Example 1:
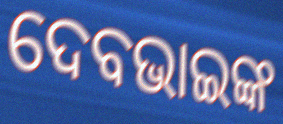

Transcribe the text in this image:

ଦେବଭାଇଙ୍କ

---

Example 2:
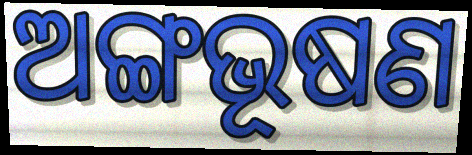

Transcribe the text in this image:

ଅଙ୍ଗଭୂଷଣ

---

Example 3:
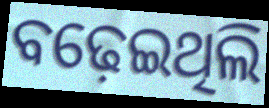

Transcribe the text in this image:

ବଢ଼େଇଥିଲି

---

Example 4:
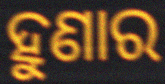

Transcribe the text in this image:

ହୁଣାର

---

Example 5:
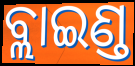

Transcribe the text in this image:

ବ୍ଲାଇଣ୍ଡ